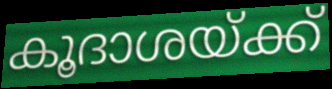
കൂദാശയ്ക്ക്